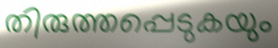
തിരുത്തപ്പെടുകയും